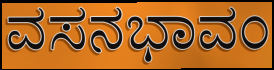
ವಸನಭಾವಂ